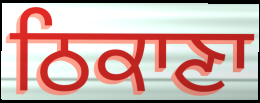
ਠਿਕਾਣਾ